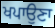
ਖਪਾਉਣਾ